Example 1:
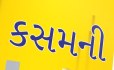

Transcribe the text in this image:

કસમની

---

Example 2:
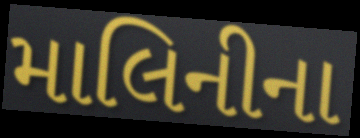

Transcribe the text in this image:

માલિનીના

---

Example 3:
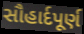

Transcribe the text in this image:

સૌહાર્દપૂર્ણ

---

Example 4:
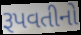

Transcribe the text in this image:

રૂપવતીનો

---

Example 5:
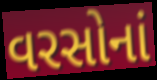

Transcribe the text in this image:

વરસોનાં